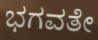
ಭಗವತೇ